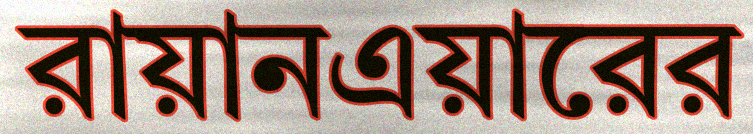
রায়ানএয়ারের